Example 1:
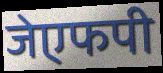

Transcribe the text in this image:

जेएफपी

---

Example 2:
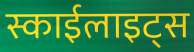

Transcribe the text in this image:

स्काईलाइट्स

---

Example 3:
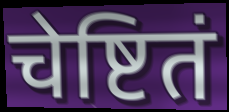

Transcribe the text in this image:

चेष्टितं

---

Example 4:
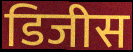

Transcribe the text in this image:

डिजीस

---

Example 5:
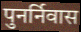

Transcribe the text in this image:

पुनर्निवास